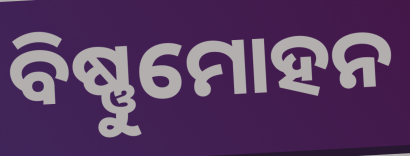
ବିଷ୍ଣୁମୋହନ